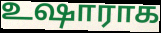
உஷாராக